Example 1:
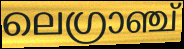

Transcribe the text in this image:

ലെഗ്രാഞ്ച്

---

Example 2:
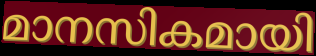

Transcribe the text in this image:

മാനസികമായി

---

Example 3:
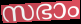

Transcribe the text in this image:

സഭാം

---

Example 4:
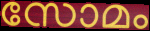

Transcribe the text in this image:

സോമം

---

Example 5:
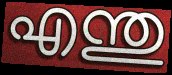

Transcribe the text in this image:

എന്തു